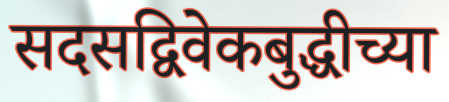
सदसद्विवेकबुद्धीच्या